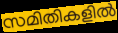
സമിതികളിൽ